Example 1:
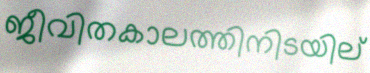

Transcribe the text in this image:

ജീവിതകാലത്തിനിടയില്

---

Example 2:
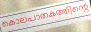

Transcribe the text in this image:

കൊലപാതകത്തിന്റെ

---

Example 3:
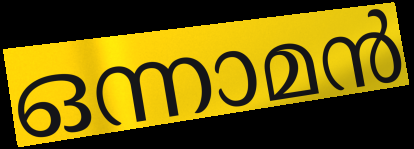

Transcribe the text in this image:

ഒന്നാമൻ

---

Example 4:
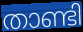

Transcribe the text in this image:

താണ്ടി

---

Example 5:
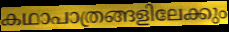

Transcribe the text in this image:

കഥാപാത്രങ്ങളിലേക്കും